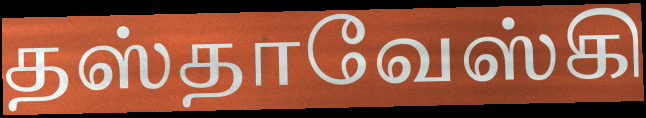
தஸ்தாவேஸ்கி